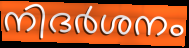
നിദർശനം